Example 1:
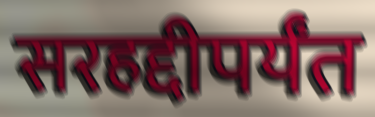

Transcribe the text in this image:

सरहद्दीपर्यंत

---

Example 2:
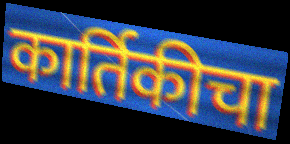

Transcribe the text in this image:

कार्तिकीचा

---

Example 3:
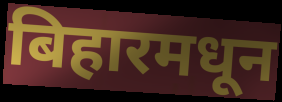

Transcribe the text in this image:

बिहारमधून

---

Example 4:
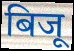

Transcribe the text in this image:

बिजू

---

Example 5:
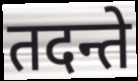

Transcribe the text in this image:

तदन्ते